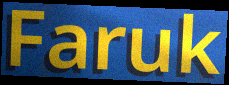
Faruk